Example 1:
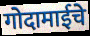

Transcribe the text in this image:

गोदामाईचे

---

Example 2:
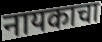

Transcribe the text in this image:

नायकाचा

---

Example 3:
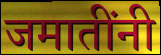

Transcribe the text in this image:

जमातींनी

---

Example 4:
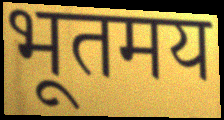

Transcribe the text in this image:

भूतमय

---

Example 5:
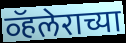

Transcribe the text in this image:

व्हॅलेराच्या